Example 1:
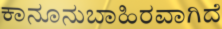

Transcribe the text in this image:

ಕಾನೂನುಬಾಹಿರವಾಗಿದೆ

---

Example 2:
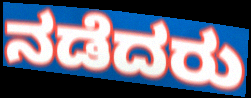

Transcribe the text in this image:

ನಡೆದರು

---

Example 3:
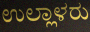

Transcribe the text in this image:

ಉಲ್ಲಾಳರು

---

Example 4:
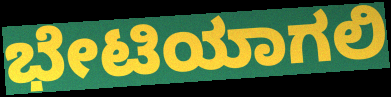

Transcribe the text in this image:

ಭೇಟಿಯಾಗಲಿ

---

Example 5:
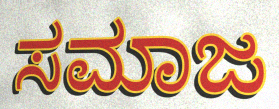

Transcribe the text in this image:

ಸಮಾಜ